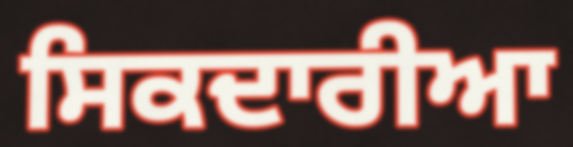
ਸਿਕਦਾਰੀਆ